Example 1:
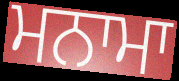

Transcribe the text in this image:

ਮਨਾਮਾ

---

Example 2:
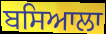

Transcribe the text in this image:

ਬਸਿਆਲਾ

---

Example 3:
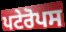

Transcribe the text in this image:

ਪਟੇਰੋਪਸ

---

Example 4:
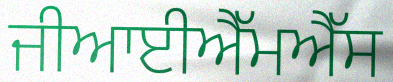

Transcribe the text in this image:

ਜੀਆਈਐੱਮਐੱਸ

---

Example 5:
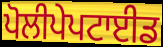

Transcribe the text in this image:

ਪੋਲੀਪੇਪਟਾਈਡ